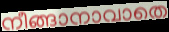
നീങ്ങാനാവാതെ